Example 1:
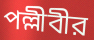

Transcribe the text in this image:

পল্লীবীর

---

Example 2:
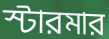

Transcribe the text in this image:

স্টারমার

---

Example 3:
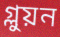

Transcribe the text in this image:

গ্লুয়ন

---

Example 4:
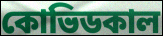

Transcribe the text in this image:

কোভিডকাল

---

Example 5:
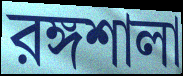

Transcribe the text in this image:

রঙ্গশালা